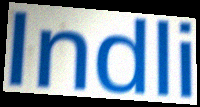
Indli